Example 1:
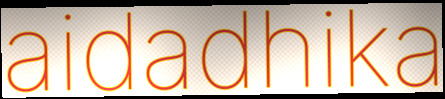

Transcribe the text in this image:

aidadhika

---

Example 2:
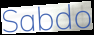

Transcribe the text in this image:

Sabdo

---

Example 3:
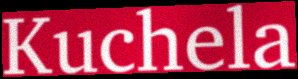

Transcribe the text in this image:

Kuchela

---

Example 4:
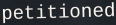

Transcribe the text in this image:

petitioned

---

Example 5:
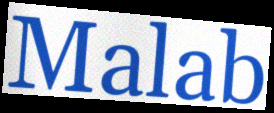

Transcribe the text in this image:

Malab